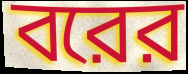
বরের